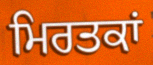
ਮਿਰਤਕਾਂ